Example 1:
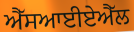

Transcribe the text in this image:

ਐੱਸਆਈਏਐੱਲ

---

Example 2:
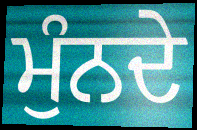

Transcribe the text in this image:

ਮੁੰਨਦੇ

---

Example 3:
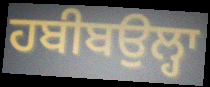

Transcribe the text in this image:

ਹਬੀਬਉਲ੍ਹਾ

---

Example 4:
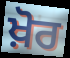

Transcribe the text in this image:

ਖ਼ੋਰ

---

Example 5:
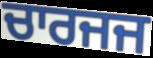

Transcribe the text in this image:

ਚਾਰਜਜ